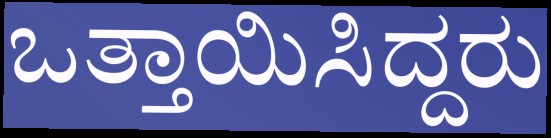
ಒತ್ತಾಯಿಸಿದ್ದರು